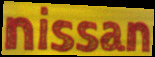
nissan